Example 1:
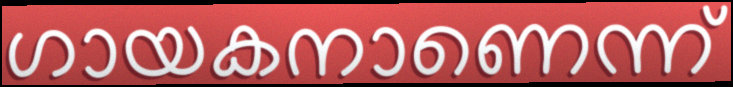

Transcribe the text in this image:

ഗായകനാണെന്ന്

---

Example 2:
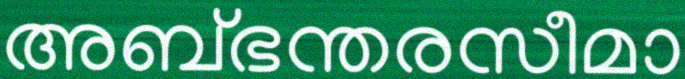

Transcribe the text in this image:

അബ്ഭന്തരസീമാ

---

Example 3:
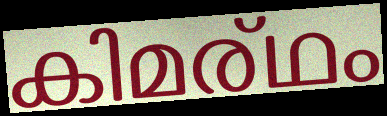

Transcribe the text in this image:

കിമര്ഥം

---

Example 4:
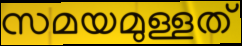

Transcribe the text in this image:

സമയമുള്ളത്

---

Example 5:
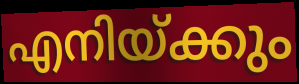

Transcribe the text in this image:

എനിയ്ക്കും